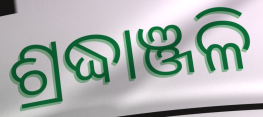
ଶ୍ରଦ୍ଧାଞ୍ଜଳି